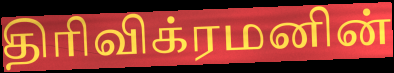
திரிவிக்ரமனின்